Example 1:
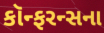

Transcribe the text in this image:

કૉન્ફરન્સના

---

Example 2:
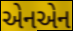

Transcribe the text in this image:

એનએન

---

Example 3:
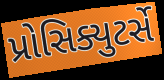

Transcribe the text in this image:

પ્રોસિક્યુટર્સે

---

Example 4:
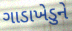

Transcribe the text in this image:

ગાડાખેડુને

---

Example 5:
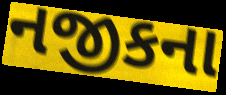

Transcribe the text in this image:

નજીકના